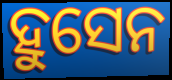
ହୁସେନ